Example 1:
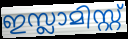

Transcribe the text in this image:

ഇസ്ലാമിസ്റ്റ്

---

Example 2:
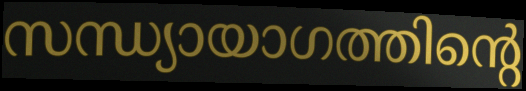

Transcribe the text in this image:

സന്ധ്യായാഗത്തിന്റെ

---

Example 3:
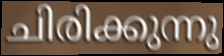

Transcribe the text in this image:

ചിരിക്കുന്നു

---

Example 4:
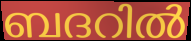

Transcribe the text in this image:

ബദറിൽ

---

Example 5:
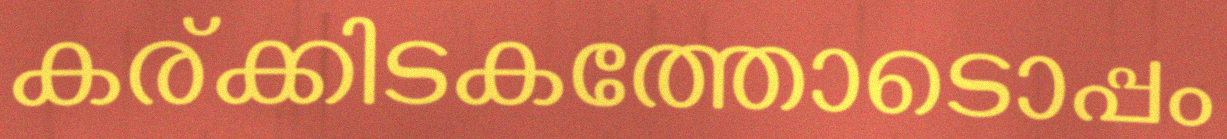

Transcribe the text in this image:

കര്ക്കിടകത്തോടൊപ്പം